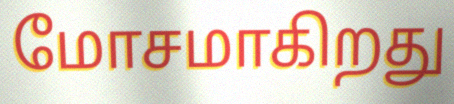
மோசமாகிறது